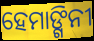
ହେମାଙ୍ଗିନୀ